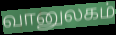
வானுலகம்